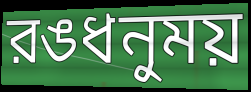
রঙধনুময়